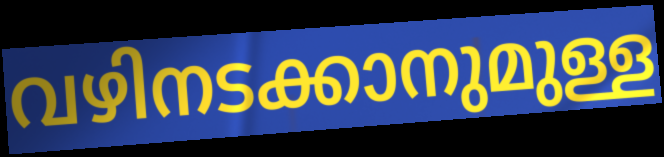
വഴിനടക്കാനുമുള്ള